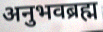
अनुभवब्रह्म